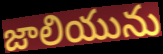
జాలియును